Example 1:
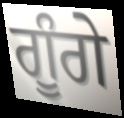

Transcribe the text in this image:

ਗੂੰਗੇ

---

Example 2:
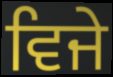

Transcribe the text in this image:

ਵਿਜੇ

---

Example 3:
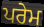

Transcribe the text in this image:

ਪਰੇਮ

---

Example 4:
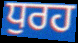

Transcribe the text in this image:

ਧੁਰਹ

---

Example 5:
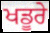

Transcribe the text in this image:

ਖਡੂਰੇ